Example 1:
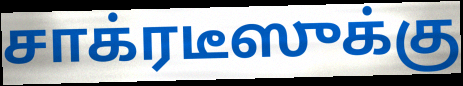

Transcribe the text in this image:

சாக்ரடீஸுக்கு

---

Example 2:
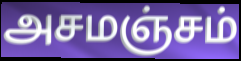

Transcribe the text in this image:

அசமஞ்சம்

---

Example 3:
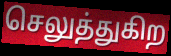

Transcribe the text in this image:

செலுத்துகிற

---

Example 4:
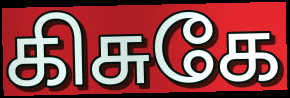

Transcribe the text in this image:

கிசுகே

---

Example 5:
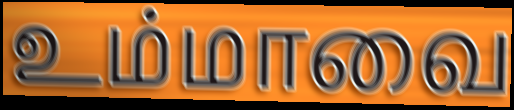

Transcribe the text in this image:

உம்மாவை